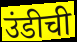
उंडीची